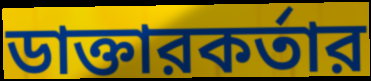
ডাক্তারকর্তার